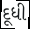
દૂધી